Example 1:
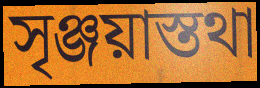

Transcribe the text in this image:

সৃঞ্জয়াস্তথা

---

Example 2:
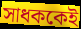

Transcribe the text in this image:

সাধককেই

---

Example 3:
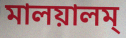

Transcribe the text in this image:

মালয়ালম্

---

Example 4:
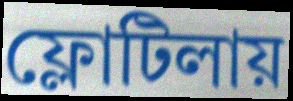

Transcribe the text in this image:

ফ্লোটিলায়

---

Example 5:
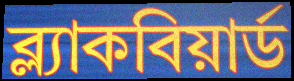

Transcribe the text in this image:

ব্ল্যাকবিয়ার্ড